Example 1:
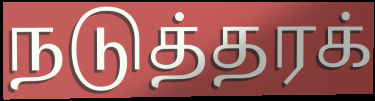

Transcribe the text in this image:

நடுத்தரக்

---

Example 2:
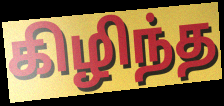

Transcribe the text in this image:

கிழிந்த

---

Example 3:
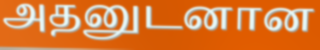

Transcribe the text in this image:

அதனுடனான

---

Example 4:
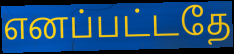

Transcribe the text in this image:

எனப்பட்டதே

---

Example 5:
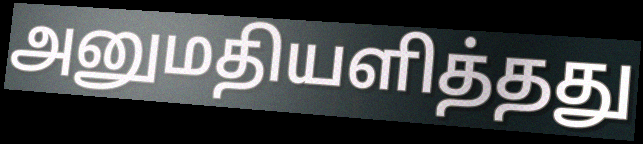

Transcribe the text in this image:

அனுமதியளித்தது